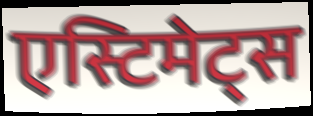
एस्टिमेट्स